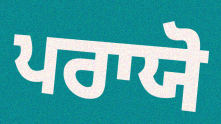
ਪਰਾਯੋ